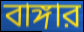
বাঙ্গার